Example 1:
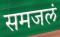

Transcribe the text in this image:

समजलं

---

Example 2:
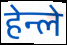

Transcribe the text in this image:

हेन्ले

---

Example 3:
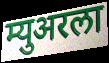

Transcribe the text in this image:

म्युअरला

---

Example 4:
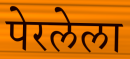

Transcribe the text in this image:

पेरलेला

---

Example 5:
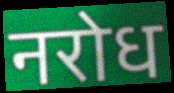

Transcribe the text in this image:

नरोध